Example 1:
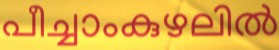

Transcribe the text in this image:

പീച്ചാംകുഴലിൽ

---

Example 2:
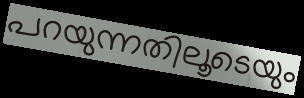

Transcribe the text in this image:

പറയുന്നതിലൂടെയും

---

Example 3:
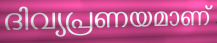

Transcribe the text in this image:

ദിവ്യപ്രണയമാണ്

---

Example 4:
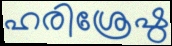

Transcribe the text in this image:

ഹരിശ്രേഷ്ഠ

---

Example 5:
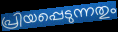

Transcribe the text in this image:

പ്രിയപ്പെടുന്നതും